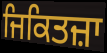
ਜਿਕਿਤਜ਼ਾ